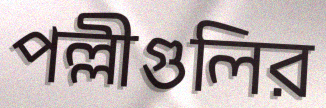
পল্লীগুলির